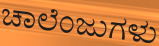
ಚಾಲೆಂಜುಗಳು